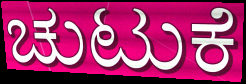
ಚುಟುಕೆ